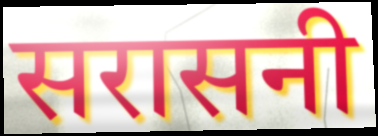
सरासनी